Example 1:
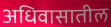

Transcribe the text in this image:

अधिवासातील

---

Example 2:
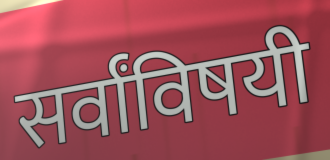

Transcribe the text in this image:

सर्वांविषयी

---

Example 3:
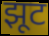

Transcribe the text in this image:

झूट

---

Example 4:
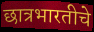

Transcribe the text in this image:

छात्रभारतीचे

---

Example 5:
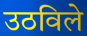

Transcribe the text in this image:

उठविले